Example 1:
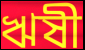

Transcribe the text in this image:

ঋষী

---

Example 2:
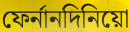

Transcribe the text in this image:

ফের্নানদিনিয়ো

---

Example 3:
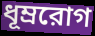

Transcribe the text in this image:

ধূম্ররোগ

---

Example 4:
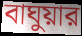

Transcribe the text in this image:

বাঘুয়ার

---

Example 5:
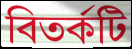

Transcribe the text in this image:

বিতর্কটি